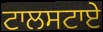
ਟਾਲਸਟਾਏ